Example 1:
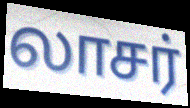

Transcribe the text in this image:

லாசர்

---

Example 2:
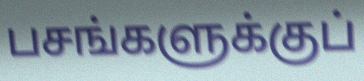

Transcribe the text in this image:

பசங்களுக்குப்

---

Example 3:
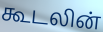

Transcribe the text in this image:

கூடலின்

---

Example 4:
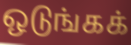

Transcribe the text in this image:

ஒடுங்கக்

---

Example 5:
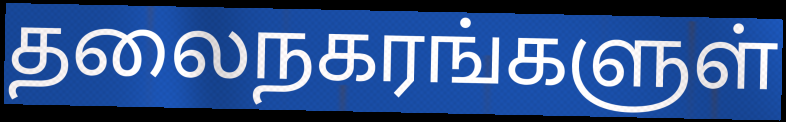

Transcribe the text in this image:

தலைநகரங்களுள்